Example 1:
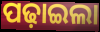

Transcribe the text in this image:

ପଢ଼ାଇଲା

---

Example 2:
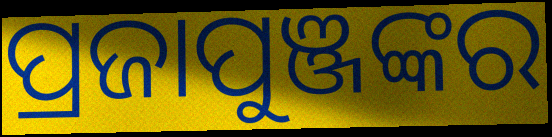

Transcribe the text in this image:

ପ୍ରଜାପୁଞ୍ଜଙ୍କର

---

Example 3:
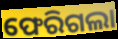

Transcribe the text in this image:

ଫେରିଗଲା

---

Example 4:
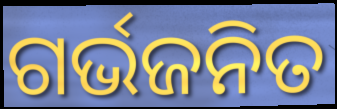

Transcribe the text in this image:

ଗର୍ଭଜନିତ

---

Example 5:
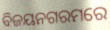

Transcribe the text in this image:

ବିଜୟନଗରମରେ